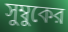
সুম্বুকের